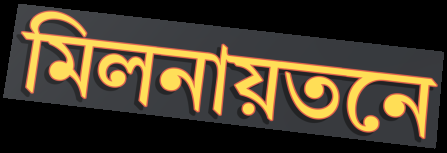
মিলনায়তনে